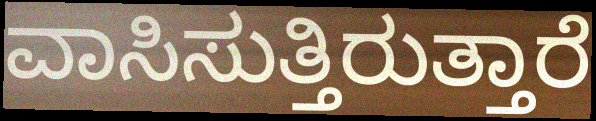
ವಾಸಿಸುತ್ತಿರುತ್ತಾರೆ